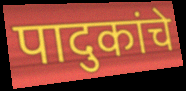
पादुकांचे